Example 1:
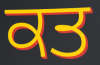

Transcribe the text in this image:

ਕਤ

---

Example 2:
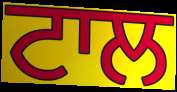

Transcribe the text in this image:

ਟਾਲ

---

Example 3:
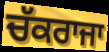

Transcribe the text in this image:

ਚੱਕਰਾਜਾ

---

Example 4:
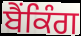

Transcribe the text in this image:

ਬੈਂਕਿੰਗ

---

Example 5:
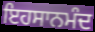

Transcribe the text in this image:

ਇਹਸਾਨਮੰਦ